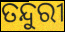
ତନ୍ଦୁରୀ